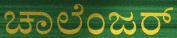
ಚಾಲೆಂಜರ್